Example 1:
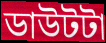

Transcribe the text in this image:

ডাউটটা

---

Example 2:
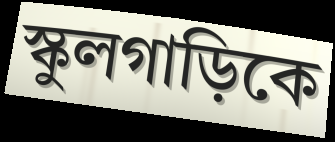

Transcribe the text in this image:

স্কুলগাড়িকে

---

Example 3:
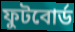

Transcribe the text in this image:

ফুটবোর্ড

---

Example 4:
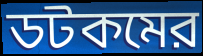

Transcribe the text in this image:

ডটকমের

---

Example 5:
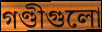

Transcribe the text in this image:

গণ্ডীগুলো